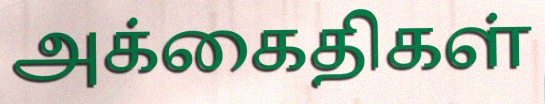
அக்கைதிகள்